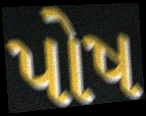
પોષ